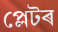
প্লেটৰ